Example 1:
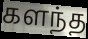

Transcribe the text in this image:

களந்த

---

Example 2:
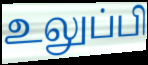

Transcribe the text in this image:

உலுப்பி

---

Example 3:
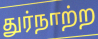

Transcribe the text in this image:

துர்நாற்ற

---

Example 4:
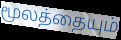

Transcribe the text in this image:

மூலத்தையும்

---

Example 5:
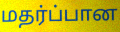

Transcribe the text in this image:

மதர்ப்பான